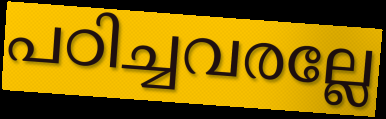
പഠിച്ചവരല്ലേ